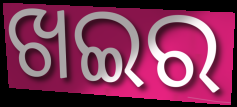
ଖଇର